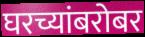
घरच्यांबरोबर